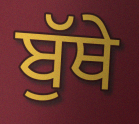
ਬੁੱਥੇ